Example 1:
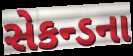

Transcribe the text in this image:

સેકન્ડના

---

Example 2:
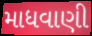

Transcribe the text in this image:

માધવાણી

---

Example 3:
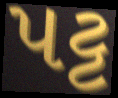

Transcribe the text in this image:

પટ્ટ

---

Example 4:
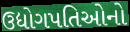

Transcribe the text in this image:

ઉદ્યોગપતિઓનો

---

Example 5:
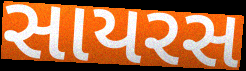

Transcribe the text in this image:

સાયરસ